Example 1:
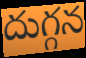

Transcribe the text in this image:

దుగ్గన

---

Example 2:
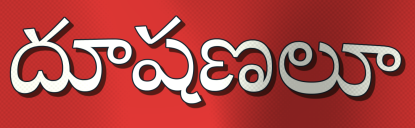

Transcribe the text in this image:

దూషణలూ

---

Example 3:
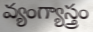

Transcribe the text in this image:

వ్యంగ్యాస్త్రం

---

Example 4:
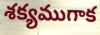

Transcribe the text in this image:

శక్యముగాక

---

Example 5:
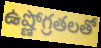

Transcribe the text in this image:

ఉష్ణోగ్రతలతో